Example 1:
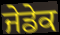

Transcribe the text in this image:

ਜੇਡੇਕ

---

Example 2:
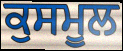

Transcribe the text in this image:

ਕੁਸਮੂਲ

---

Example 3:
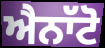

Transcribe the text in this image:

ਐਨਾੱਟੋ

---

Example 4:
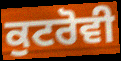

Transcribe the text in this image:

ਕੁਟਰੋਵੀ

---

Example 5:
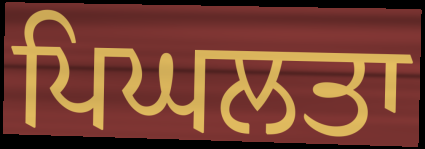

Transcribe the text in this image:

ਪਿਘਲਤਾ